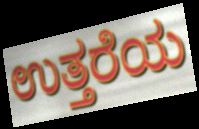
ಉತ್ತರೆಯ